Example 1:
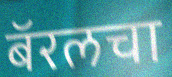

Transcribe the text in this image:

बॅरलचा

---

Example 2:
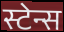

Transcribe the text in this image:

स्टेन्स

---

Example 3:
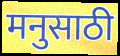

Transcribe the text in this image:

मनुसाठी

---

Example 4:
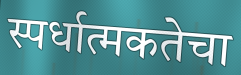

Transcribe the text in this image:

स्पर्धात्मकतेचा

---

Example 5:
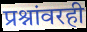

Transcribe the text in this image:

प्रश्नांवरही